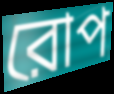
রোপ